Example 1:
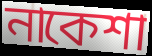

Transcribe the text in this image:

নাকেশা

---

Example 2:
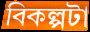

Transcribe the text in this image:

বিকল্পটা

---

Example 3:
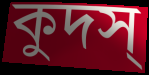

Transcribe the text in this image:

কুদস্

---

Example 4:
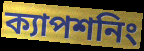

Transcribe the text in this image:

ক্যাপশনিং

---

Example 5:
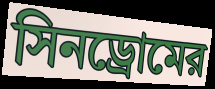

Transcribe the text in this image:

সিনড্রোমের